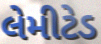
લેમીટેડ